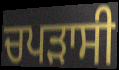
ਚਪੜਾਸੀ